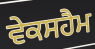
ਵੇਕਸਹੈਮ